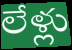
లేళ్లు